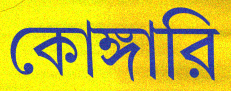
কোঙ্গারি